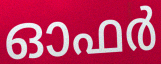
ഓഫർ